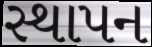
સ્થાપન